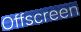
Offscreen